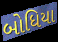
બોધિયા